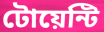
টোয়েন্টি